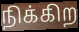
நிக்கிற